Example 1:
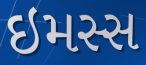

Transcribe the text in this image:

ઇમસ્સ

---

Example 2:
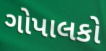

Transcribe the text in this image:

ગોપાલકો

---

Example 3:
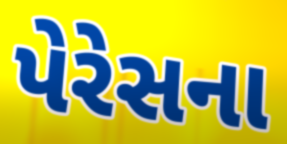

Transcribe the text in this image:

પેરેસના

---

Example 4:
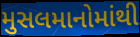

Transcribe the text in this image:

મુસલમાનોમાંથી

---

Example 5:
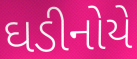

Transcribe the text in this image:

ઘડીનોયે